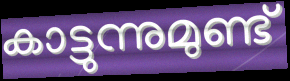
കാട്ടുന്നുമുണ്ട്